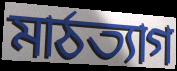
মাঠত্যাগ